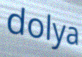
dolya